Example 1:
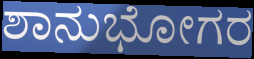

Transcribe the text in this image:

ಶಾನುಭೋಗರ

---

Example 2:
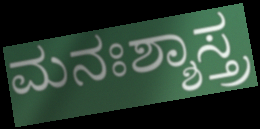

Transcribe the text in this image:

ಮನಃಶ್ಶಾಸ್ತ್ರ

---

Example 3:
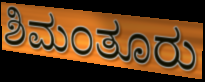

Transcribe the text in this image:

ಶಿಮಂತೂರು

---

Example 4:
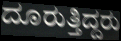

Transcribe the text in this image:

ದೂರುತ್ತಿದ್ದರು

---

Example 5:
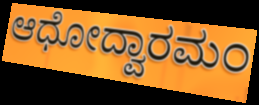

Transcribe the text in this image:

ಆಧೋದ್ವಾರಮಂ